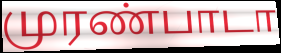
முரண்பாடா